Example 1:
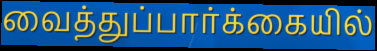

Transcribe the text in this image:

வைத்துப்பார்க்கையில்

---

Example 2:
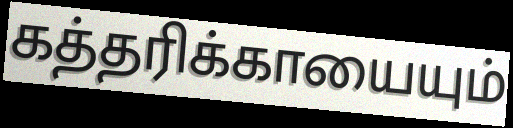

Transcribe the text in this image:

கத்தரிக்காயையும்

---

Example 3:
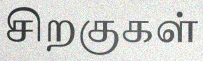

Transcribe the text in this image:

சிறகுகள்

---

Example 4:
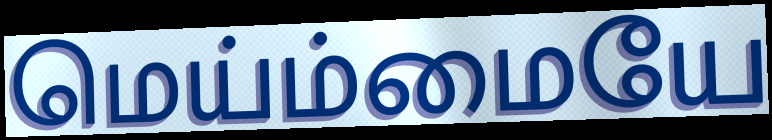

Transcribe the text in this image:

மெய்ம்மையே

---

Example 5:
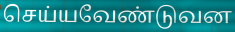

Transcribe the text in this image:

செய்யவேண்டுவன